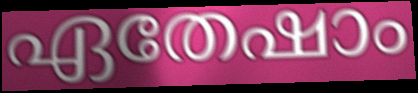
ഏതേഷാം